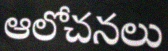
ఆలోచనలు